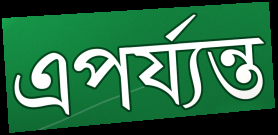
এপর্য্যন্ত